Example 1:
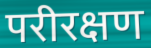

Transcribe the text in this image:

परीरक्षण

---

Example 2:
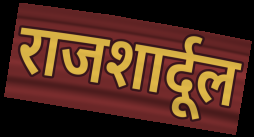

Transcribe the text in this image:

राजशार्दूल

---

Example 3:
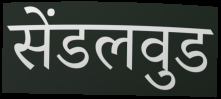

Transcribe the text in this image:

सेंडलवुड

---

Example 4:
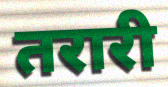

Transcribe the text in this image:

तरारी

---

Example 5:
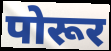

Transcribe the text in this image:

पोरूर